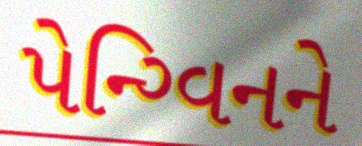
પેન્ગ્વિનને